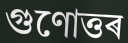
গুণোত্তৰ